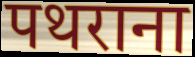
पथराना